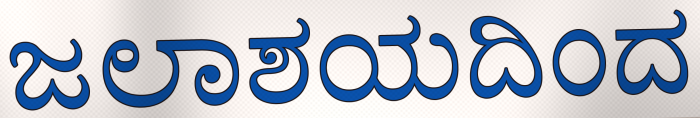
ಜಲಾಶಯದಿಂದ